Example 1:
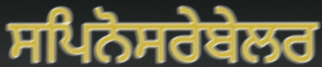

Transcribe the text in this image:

ਸਪਿਨੋਸਰੇਬੇਲਰ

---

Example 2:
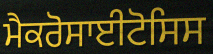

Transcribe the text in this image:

ਮੈਕਰੋਸਾਈਟੋਸਿਸ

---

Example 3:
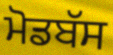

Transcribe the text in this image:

ਮੋਡਬੱਸ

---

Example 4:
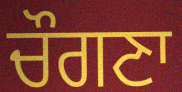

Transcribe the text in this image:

ਚੌਗਣਾ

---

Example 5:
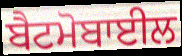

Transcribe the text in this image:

ਬੈਟਮੋਬਾਈਲ